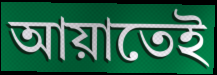
আয়াতেই